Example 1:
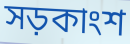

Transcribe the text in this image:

সড়কাংশ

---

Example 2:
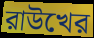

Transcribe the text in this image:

রাউখের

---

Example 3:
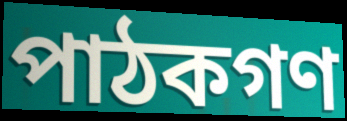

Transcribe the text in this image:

পাঠকগণ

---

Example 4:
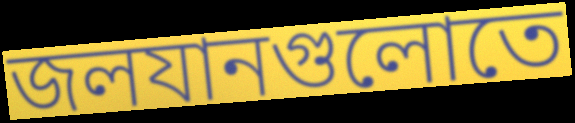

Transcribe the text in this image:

জলযানগুলোতে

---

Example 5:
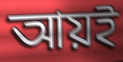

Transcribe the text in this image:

আয়ই